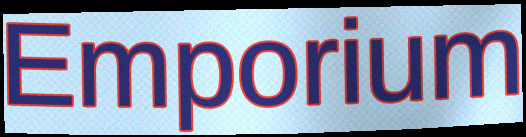
Emporium